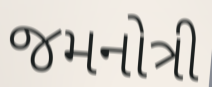
જમનોત્રી